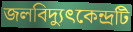
জলবিদ্যুৎকেন্দ্রটি